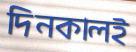
দিনকালই